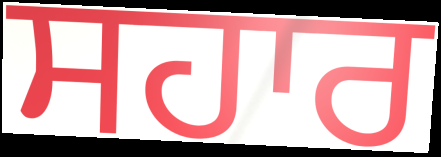
ਸਹਾਰ